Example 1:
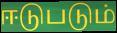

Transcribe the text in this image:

ஈடுபடும்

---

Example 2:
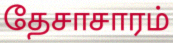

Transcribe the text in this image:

தேசாசாரம்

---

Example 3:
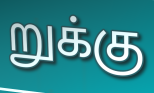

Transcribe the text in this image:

றுக்கு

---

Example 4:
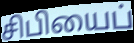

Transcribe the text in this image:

சிபியைப்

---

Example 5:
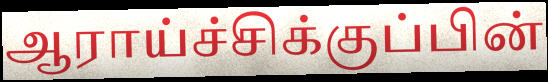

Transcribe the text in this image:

ஆராய்ச்சிக்குப்பின்